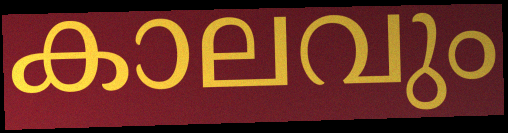
കാലവും